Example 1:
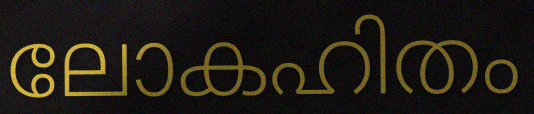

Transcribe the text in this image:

ലോകഹിതം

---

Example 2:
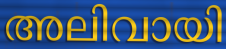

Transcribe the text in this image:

അലിവായി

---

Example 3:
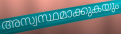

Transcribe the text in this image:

അസ്വസ്ഥമാക്കുകയും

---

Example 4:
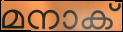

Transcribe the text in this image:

മനാക്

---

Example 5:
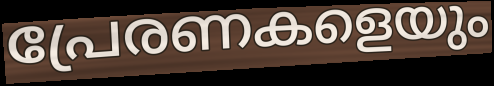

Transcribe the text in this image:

പ്രേരണകളെയും